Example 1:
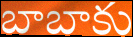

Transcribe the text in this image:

బాబాకు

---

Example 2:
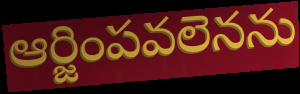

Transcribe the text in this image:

ఆర్జింపవలెనను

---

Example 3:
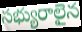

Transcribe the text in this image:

సభ్యురాలైన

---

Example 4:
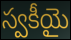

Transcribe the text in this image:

స్వకీయై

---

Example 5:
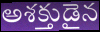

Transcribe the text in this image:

అశక్తుడైన